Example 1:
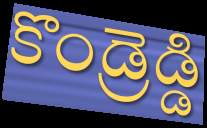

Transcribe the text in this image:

కొండ్రెడ్డి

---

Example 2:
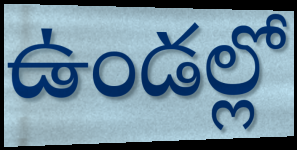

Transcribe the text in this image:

ఉండల్లో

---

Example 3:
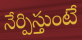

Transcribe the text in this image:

నేర్పిస్తుంటే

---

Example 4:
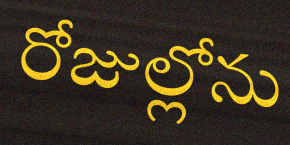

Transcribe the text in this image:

రోజుల్లోను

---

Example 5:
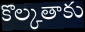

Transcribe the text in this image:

కొల్కతాకు